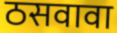
ठसवावा